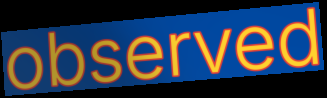
observed